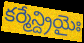
కర్మేన్ద్రియైః